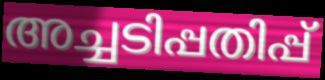
അച്ചടിപ്പതിപ്പ്